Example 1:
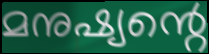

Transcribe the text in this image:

മനുഷ്യന്റെ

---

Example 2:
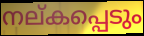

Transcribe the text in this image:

നല്കപ്പെടും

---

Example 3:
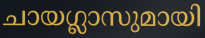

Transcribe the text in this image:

ചായഗ്ലാസുമായി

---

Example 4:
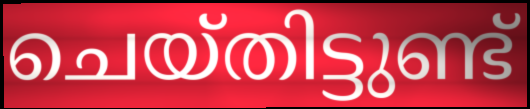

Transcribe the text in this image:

ചെയ്തിട്ടുണ്ട്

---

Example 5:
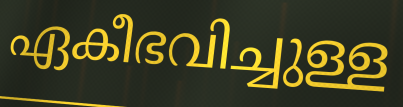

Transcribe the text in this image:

ഏകീഭവിച്ചുള്ള